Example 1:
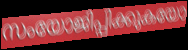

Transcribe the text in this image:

സംയോജിപ്പിക്കുകയോ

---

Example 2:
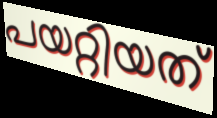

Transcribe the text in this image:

പയറ്റിയത്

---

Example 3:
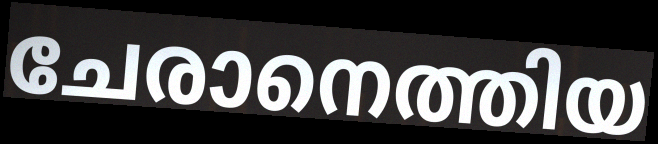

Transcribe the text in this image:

ചേരാനെത്തിയ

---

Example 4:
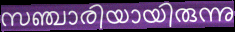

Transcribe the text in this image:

സഞ്ചാരിയായിരുന്നു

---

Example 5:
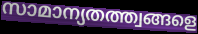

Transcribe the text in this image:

സാമാന്യതത്ത്വങ്ങളെ